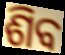
ଶିବ